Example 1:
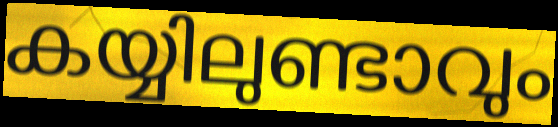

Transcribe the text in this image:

കയ്യിലുണ്ടാവും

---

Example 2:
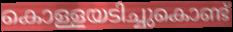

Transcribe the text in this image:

കൊള്ളയടിച്ചുകൊണ്ട്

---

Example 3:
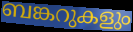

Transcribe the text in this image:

ബങ്കറുകളും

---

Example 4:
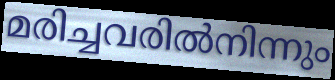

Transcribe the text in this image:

മരിച്ചവരിൽനിന്നും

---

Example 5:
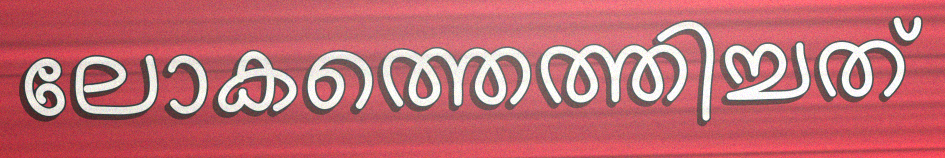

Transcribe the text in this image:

ലോകത്തെത്തിച്ചത്